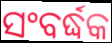
ସଂବର୍ଦ୍ଧକ